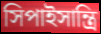
সিপাইসান্ত্রি